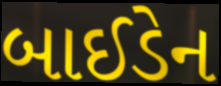
બાઈડેન